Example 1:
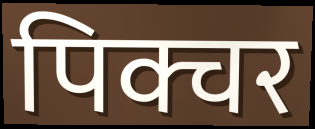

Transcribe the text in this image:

पिक्चर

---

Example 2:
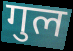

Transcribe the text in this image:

गुल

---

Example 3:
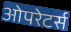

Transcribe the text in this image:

ओपरेटर्स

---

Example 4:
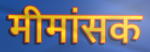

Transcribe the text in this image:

मीमांसक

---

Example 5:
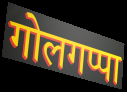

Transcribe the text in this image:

गोलगप्पा